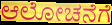
ಆಲೋಚನೆಗೆ